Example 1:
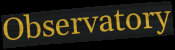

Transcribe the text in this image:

Observatory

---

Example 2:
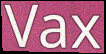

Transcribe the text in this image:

Vax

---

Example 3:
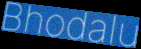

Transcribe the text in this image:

Bhodalu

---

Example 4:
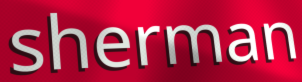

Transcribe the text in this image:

sherman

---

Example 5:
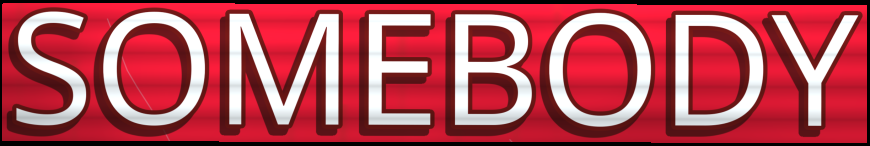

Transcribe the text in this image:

SOMEBODY